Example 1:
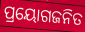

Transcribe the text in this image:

ପ୍ରୟୋଗଜନିତ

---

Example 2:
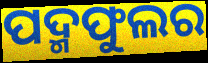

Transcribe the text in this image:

ପଦ୍ମଫୁଲର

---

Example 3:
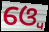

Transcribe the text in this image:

ଓ୍ବେ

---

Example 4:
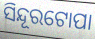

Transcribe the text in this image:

ସିନ୍ଦୂରଟୋପା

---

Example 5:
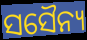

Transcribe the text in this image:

ସସୈନ୍ୟ